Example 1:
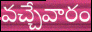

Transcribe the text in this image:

వచ్చేవారం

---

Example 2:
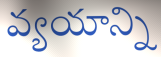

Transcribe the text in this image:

వ్యయాన్ని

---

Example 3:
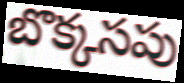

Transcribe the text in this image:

బొక్కసపు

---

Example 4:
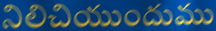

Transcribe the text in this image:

నిలిచియుందుము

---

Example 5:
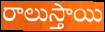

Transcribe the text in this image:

రాలుస్తాయి